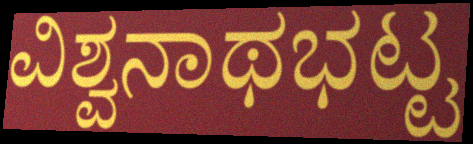
ವಿಶ್ವನಾಥಭಟ್ಟ